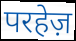
परहेज़